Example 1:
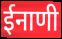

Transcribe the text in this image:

ईनाणी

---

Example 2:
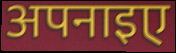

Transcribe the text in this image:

अपनाइए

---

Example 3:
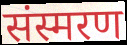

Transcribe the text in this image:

संस्मरण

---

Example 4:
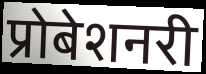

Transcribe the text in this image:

प्रोबेशनरी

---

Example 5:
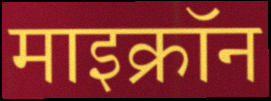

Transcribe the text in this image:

माइक्रॉन